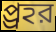
প্র্রহর